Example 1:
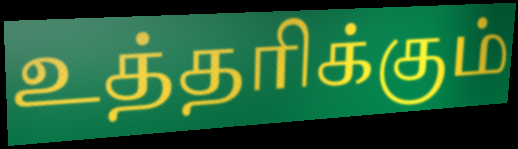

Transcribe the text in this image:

உத்தரிக்கும்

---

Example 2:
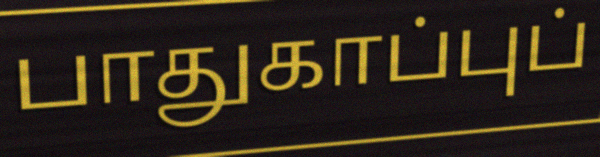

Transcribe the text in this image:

பாதுகாப்புப்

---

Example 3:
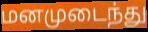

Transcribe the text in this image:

மனமுடைந்து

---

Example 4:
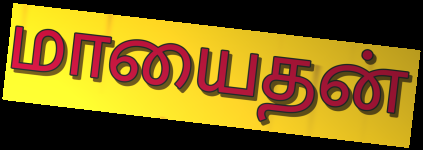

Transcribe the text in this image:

மாயைதன்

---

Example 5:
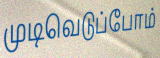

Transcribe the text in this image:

முடிவெடுப்போம்